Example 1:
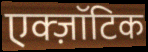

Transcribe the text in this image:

एक्ज़ॉटिक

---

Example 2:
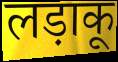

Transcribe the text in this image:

लड़ाकू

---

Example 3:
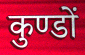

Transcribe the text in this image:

कुण्डों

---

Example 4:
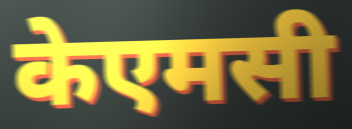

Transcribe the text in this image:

केएमसी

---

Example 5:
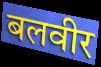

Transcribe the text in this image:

बलवीर